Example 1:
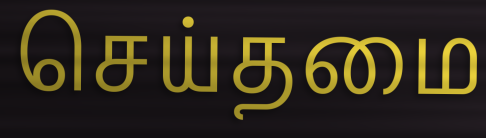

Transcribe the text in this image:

செய்தமை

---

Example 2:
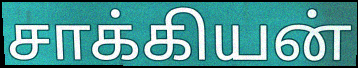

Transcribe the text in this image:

சாக்கியன்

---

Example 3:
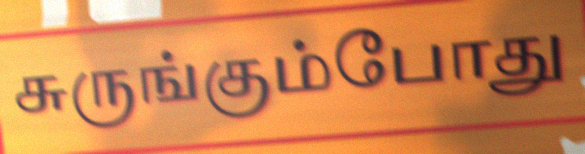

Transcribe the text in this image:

சுருங்கும்போது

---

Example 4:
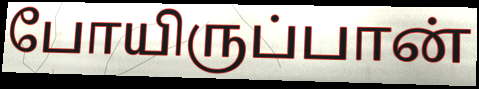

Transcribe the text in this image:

போயிருப்பான்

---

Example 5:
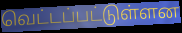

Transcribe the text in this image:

வெட்டப்பட்டுள்ளன